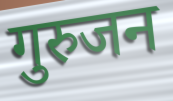
गुरुजन